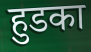
हुडका